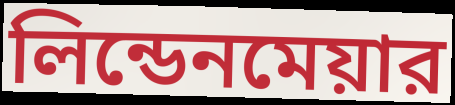
লিন্ডেনমেয়ার